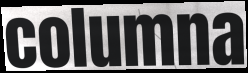
columna